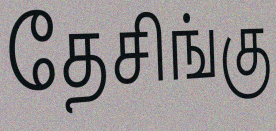
தேசிங்கு